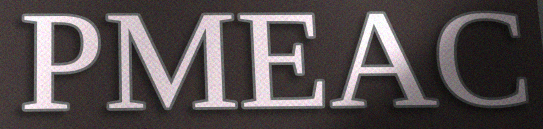
PMEAC